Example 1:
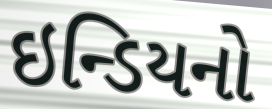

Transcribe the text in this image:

ઇન્ડિયનો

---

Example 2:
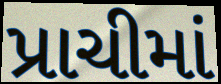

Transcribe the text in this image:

પ્રાચીમાં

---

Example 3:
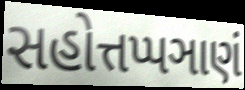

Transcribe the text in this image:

સહોત્તપ્પઞાણં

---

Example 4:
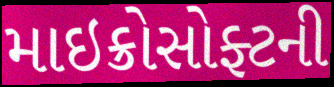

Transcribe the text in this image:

માઇક્રોસોફ્ટની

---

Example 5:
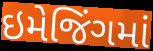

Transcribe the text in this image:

ઇમેજિંગમાં